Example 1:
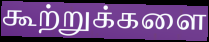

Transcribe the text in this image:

கூற்றுக்களை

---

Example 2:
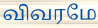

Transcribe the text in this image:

விவரமே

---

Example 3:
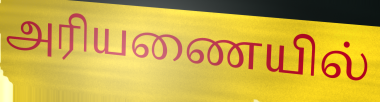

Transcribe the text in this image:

அரியணையில்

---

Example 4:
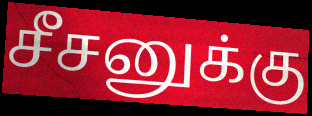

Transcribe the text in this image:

சீசனுக்கு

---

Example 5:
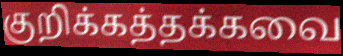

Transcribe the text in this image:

குறிக்கத்தக்கவை